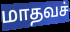
மாதவச்